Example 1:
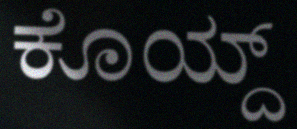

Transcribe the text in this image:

ಕೊಯ್ದ್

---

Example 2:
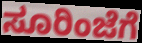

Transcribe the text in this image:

ಸೂರಿಂಜೆಗೆ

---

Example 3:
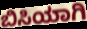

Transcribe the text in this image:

ಬಿಸಿಯಾಗಿ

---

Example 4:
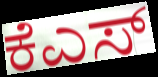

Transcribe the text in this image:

ಕೆಎಸ್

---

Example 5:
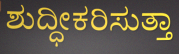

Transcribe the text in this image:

ಶುದ್ಧೀಕರಿಸುತ್ತಾ